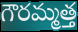
గౌరమ్మత్త